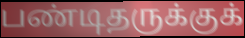
பண்டிதருக்குக்